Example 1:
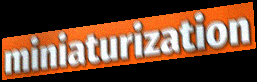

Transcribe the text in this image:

miniaturization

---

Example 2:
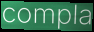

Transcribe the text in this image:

compla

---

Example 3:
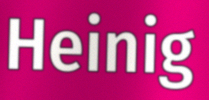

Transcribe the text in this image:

Heinig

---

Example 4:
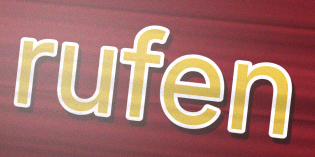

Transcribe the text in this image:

rufen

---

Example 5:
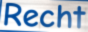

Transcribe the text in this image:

Recht